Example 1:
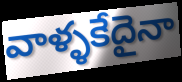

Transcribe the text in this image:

వాళ్ళకేదైనా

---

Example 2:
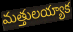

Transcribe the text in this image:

మత్తులయ్యాక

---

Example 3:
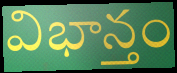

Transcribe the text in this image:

విభాన్తం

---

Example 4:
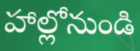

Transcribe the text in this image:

హాల్లోనుండి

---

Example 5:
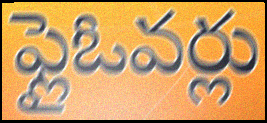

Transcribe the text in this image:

ఫ్లైఓవర్లు